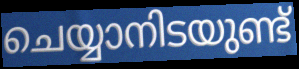
ചെയ്യാനിടയുണ്ട്